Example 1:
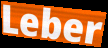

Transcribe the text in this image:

Leber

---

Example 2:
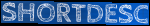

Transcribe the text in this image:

SHORTDESC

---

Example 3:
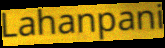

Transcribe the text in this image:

Lahanpani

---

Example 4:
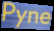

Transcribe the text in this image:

Pyne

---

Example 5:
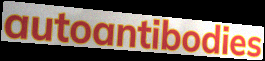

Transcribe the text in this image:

autoantibodies